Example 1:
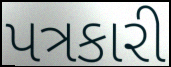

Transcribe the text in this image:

પત્રકારી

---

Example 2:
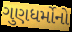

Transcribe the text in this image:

ગુણધર્મોનો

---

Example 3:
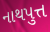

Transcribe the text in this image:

નાથપુત્ત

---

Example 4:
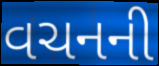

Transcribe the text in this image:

વચનની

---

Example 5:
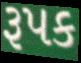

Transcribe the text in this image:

રૂપક